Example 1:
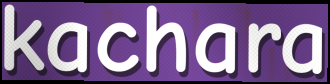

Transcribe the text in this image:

kachara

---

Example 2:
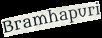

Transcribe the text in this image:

Bramhapuri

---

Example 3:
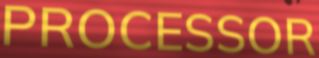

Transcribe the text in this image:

PROCESSOR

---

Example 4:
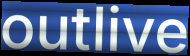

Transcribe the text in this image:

outlive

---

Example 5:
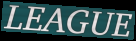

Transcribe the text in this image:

LEAGUE